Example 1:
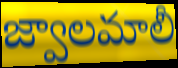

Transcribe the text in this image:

జ్వాలమాలీ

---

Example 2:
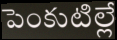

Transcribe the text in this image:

పెంకుటిల్లే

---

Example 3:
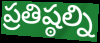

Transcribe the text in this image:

ప్రతిష్ఠల్ని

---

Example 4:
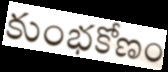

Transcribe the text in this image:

కుంభకోణం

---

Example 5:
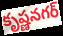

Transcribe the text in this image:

కృష్ణనగర్